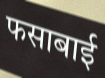
फसाबाई